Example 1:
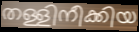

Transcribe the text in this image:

തള്ളിനീക്കിയ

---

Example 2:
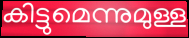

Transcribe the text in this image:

കിട്ടുമെന്നുമുള്ള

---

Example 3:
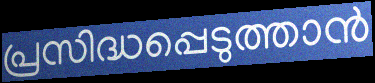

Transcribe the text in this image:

പ്രസിദ്ധപ്പെടുത്താൻ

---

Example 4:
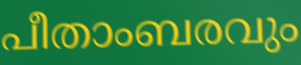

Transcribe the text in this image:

പീതാംബരവും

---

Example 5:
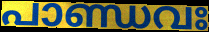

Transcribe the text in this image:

പാണ്ഡവഃ